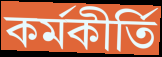
কর্মকীর্তি